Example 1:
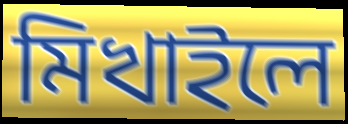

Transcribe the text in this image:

মিখাইলে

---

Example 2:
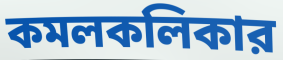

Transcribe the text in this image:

কমলকলিকার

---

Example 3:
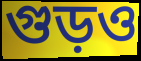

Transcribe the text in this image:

গুড়ও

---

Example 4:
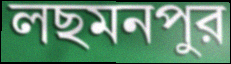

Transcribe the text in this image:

লছমনপুর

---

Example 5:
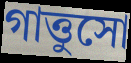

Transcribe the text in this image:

গাত্তুসো